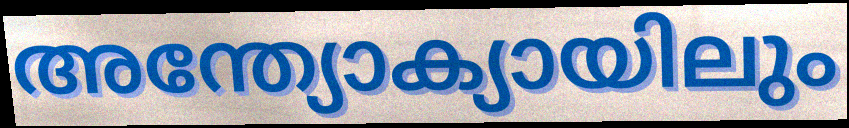
അന്ത്യോക്യായിലും